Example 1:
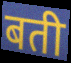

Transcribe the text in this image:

बती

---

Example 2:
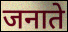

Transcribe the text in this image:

जनाते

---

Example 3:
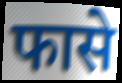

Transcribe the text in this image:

फासे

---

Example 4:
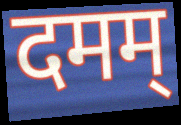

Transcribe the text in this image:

दमम्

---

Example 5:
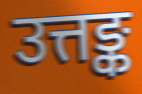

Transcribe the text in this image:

उत्तङ्क